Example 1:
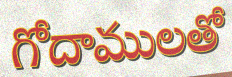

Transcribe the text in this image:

గోదాములతో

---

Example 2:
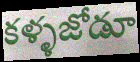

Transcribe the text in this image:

కళ్ళజోడూ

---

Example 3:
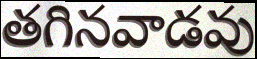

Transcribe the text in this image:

తగినవాడవు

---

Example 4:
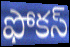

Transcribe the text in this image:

ఫోకస్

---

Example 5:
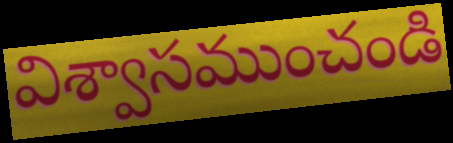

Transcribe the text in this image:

విశ్వాసముంచండి